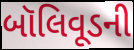
બૉલિવૂડની